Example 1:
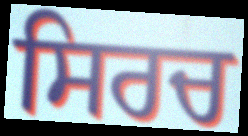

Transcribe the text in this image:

ਸਿਰਚ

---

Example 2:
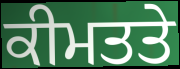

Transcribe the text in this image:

ਕੀਮਤਤੇ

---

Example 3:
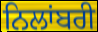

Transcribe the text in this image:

ਨਿਲਾਂਬਰੀ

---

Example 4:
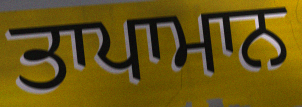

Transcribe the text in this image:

ਤਾਪਾਮਾਨ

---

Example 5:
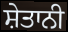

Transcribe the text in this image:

ਸ਼ੇਤਾਨੀ